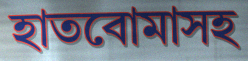
হাতবোমাসহ